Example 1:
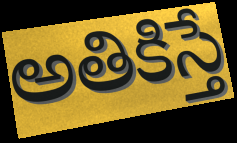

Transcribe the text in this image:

అతికిస్తే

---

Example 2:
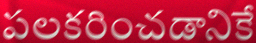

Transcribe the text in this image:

పలకరించడానికే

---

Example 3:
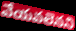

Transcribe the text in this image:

వేయవలెనని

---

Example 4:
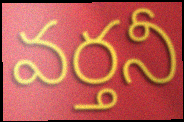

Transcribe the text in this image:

వర్తనీ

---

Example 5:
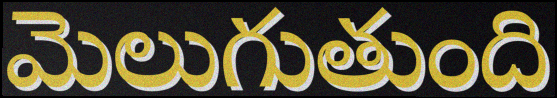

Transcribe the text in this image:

మెలుగుతుంది